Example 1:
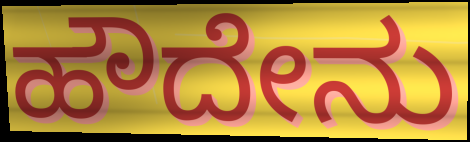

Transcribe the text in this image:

ಹೌದೇನು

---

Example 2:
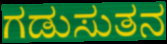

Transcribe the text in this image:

ಗಡುಸುತನ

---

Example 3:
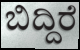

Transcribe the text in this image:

ಬಿದ್ದಿರೆ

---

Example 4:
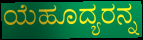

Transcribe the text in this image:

ಯೆಹೂದ್ಯರನ್ನ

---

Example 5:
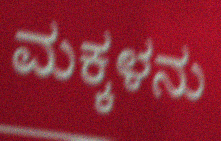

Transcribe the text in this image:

ಮಕ್ಕಳನು